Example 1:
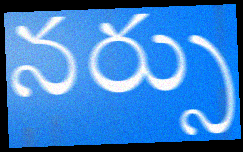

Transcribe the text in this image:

నర్సు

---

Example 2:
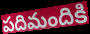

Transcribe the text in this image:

పదిమందికి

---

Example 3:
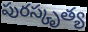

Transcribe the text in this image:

పురస్కృత్య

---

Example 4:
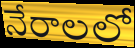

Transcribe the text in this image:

నేరాలలో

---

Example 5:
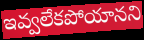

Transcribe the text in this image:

ఇవ్వలేకపోయానని